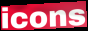
icons